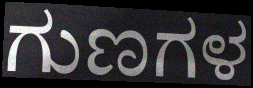
ಗುಣಗಳ